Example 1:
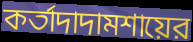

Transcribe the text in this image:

কর্তাদাদামশায়ের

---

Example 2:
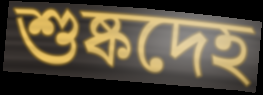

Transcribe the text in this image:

শুষ্কদেহ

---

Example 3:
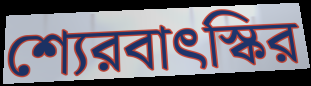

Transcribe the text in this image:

শ্যেরবাৎস্কির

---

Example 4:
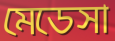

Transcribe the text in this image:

মেডেসা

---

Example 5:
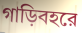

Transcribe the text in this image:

গাড়িবহরে